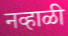
नव्हाळी